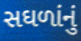
સઘળાંનું